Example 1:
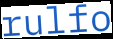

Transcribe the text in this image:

rulfo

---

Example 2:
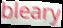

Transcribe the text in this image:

bleary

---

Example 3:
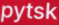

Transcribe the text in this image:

pytsk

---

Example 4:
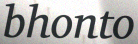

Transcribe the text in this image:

bhonto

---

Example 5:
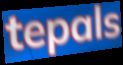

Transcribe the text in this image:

tepals